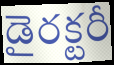
డైరక్టరీ